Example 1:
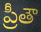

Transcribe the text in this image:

ప్రీతౌ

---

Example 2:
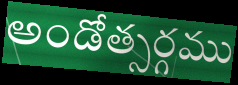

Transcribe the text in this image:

అండోత్సర్గము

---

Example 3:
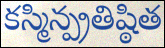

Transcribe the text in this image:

కస్మిన్ప్రతిష్ఠిత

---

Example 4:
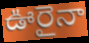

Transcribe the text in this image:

ఊరైనా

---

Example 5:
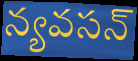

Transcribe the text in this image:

న్యవసన్